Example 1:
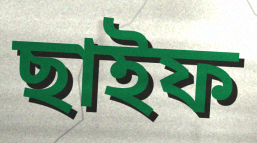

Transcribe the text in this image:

ছাইফ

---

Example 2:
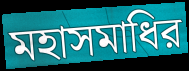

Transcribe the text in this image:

মহাসমাধির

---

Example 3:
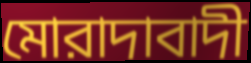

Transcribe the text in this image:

মোরাদাবাদী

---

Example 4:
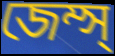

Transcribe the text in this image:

জেম্স্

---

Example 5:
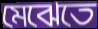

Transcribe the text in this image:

মেঝেতে